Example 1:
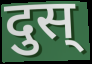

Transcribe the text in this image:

दुस्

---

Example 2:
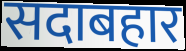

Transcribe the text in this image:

सदाबहार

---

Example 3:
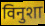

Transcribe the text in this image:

विनुशा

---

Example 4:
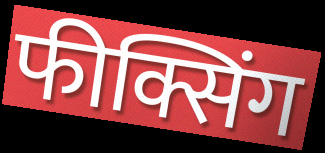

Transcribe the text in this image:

फीक्सिंग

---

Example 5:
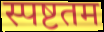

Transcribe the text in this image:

स्पष्टतम